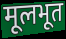
मूलभूत